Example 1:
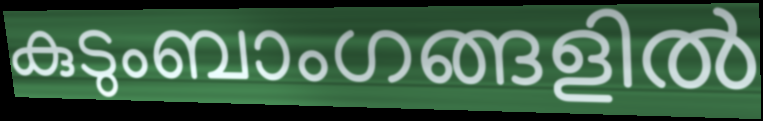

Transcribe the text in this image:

കുടുംബാംഗങ്ങളിൽ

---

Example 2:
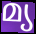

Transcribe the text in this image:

മ്യ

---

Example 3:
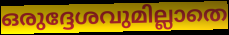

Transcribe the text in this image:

ഒരുദ്ദേശവുമില്ലാതെ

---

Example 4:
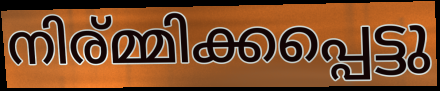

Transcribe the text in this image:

നിര്മ്മിക്കപ്പെട്ടു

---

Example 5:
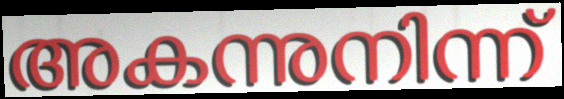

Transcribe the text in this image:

അകന്നുനിന്ന്